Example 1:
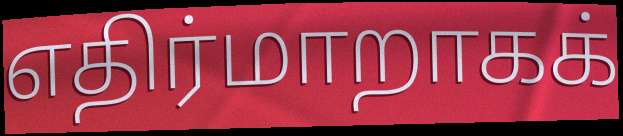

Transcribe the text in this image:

எதிர்மாறாகக்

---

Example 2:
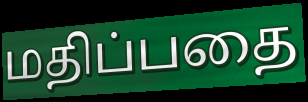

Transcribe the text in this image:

மதிப்பதை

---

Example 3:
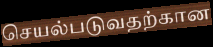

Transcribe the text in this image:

செயல்படுவதற்கான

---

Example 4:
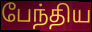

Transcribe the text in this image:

பேந்திய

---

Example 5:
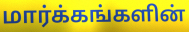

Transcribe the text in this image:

மார்க்கங்களின்